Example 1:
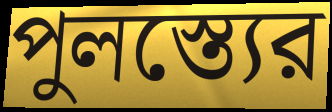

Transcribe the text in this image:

পুলস্ত্যের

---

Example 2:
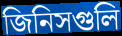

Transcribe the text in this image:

জিনিসগুলি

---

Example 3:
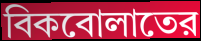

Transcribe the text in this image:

বিকবোলাতের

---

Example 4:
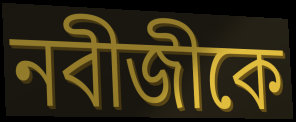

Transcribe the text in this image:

নবীজীকে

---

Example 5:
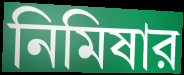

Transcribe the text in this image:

নিমিষার